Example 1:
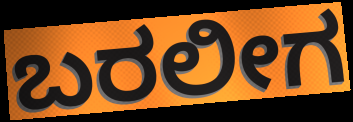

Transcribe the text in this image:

ಬರಲೀಗ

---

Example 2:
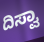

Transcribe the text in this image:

ದಿಸ್ವಾ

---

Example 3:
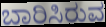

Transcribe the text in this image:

ಬಾರಿಸಿರುವ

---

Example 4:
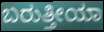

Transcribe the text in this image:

ಬರುತ್ತೀಯಾ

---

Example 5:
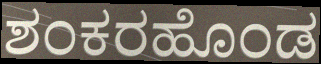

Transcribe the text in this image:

ಶಂಕರಹೊಂಡ